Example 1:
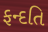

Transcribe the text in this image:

ફન્દતિ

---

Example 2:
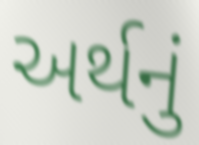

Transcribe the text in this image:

અર્થનું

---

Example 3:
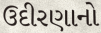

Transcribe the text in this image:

ઉદીરણાનો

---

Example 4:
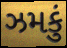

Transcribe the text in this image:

ઝમકું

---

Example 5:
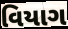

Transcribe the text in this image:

વિયાગ